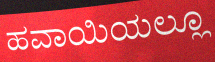
ಹವಾಯಿಯಲ್ಲೂ